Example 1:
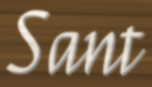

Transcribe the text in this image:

Sant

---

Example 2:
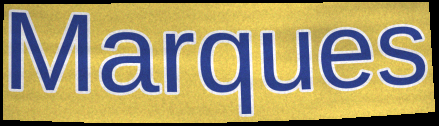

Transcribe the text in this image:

Marques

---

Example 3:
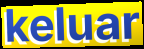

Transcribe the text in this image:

keluar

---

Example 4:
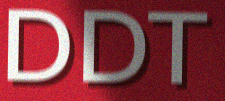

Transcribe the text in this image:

DDT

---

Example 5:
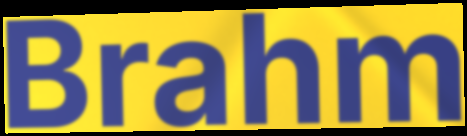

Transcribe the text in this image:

Brahm